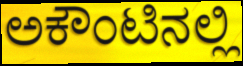
ಅಕೌಂಟಿನಲ್ಲಿ